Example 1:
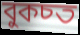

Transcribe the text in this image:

বুকচ্ত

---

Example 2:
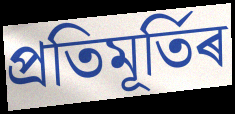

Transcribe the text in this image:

প্ৰতিমূৰ্তিৰ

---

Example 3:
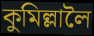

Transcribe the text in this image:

কুমিল্লালৈ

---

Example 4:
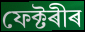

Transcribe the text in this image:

ফেক্টৰীৰ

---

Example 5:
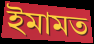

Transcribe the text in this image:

ইমামত